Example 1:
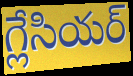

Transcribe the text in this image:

గ్లేసియర్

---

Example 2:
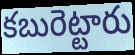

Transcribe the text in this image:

కబురెట్టారు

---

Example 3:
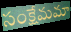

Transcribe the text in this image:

సంక్షేమమా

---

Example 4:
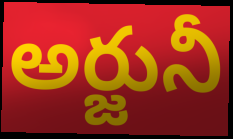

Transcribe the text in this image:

అర్జునీ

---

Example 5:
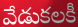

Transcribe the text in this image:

వేడుకలకీ